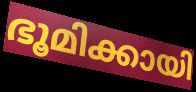
ഭൂമിക്കായി